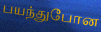
பயந்துபோன